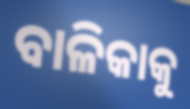
ବାଳିକାକୁ